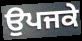
ਉਪਜਕੇ